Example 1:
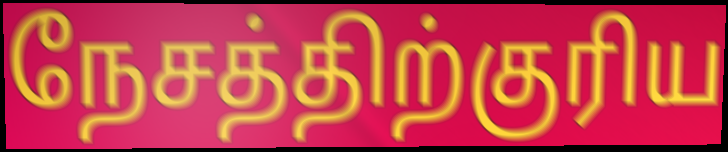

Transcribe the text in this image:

நேசத்திற்குரிய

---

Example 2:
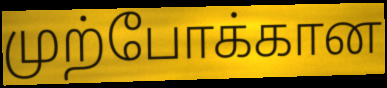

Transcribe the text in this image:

முற்போக்கான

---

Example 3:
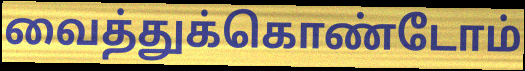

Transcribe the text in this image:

வைத்துக்கொண்டோம்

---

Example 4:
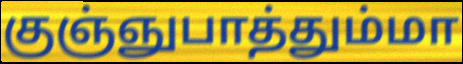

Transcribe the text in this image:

குஞ்ஞுபாத்தும்மா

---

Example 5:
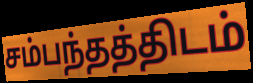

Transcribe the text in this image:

சம்பந்தத்திடம்